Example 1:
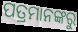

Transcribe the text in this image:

ପତ୍ରମାନଙ୍କରୁ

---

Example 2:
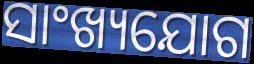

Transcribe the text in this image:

ସାଂଖ୍ଯଯୋଗ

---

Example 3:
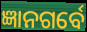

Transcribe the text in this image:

ଜ୍ଞାନଗର୍ବେ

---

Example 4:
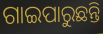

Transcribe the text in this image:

ଗାଇପାରୁଛନ୍ତି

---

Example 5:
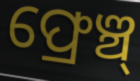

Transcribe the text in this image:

ଫ୍ରେଞ୍ଚ୍